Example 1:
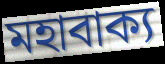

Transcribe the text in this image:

মহাবাক্য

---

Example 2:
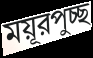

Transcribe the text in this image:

ময়ূরপুচ্ছ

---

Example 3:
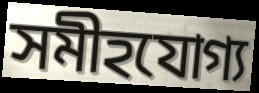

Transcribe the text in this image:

সমীহযোগ্য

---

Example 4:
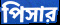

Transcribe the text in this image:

পিসার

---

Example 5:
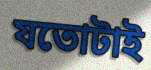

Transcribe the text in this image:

যতোটাই